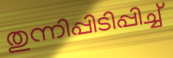
തുന്നിപ്പിടിപ്പിച്ച്